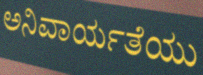
ಅನಿವಾರ್ಯತೆಯು